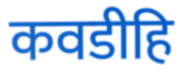
कवडीहि